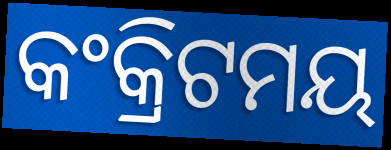
କଂକ୍ରିଟମୟ